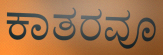
ಕಾತರವೂ